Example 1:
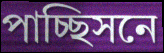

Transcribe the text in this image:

পাচ্ছিসনে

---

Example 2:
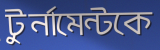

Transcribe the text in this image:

টুর্নামেন্টকে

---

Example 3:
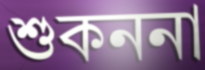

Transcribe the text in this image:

শুকননা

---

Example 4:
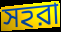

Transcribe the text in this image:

সহরা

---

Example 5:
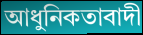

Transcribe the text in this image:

আধুনিকতাবাদী